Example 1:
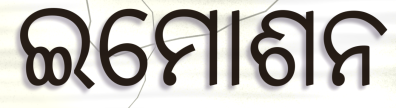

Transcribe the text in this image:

ଇମୋଶନ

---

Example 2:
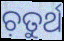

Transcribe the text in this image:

ଚ଼ତୁର୍ଥ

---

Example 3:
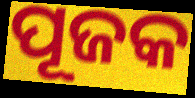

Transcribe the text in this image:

ପୂଜକ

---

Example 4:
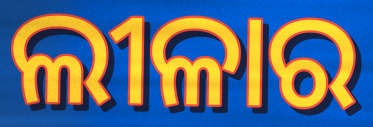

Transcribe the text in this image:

ଲୀଳାର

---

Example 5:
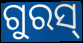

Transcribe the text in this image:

ଗୁରସ୍